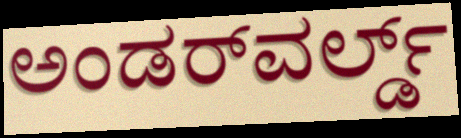
ಅಂಡರ್‌ವರ್ಲ್ಡ್